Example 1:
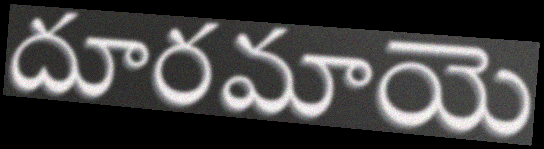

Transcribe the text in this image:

దూరమాయె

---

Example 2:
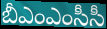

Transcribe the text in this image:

బీఎంఎంసీసీ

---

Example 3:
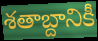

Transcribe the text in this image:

శతాబ్దానికీ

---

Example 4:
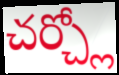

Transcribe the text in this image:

చర్చ్లో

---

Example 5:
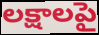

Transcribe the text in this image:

లక్షాలపై